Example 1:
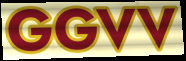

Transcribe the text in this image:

GGVV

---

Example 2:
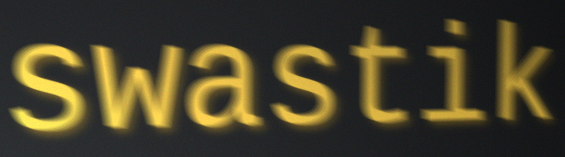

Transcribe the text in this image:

swastik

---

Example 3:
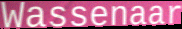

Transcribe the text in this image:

Wassenaar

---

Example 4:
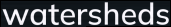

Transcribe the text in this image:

watersheds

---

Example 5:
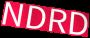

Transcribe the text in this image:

NDRD